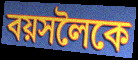
বয়সলৈকে